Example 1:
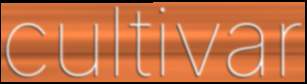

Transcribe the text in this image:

cultivar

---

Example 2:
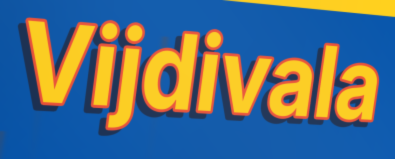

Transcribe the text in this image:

Vijdivala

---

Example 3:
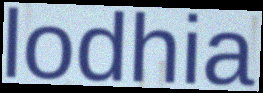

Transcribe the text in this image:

lodhia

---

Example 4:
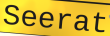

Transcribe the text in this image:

Seerat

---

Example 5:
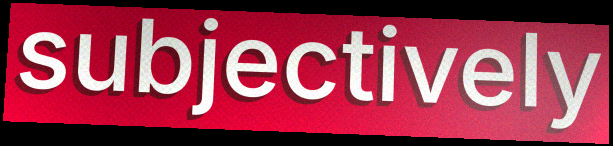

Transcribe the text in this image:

subjectively